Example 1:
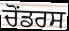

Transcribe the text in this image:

ਚੋਂਡਰਸ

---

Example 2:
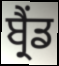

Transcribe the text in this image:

ਬ੍ਰੈਂਡ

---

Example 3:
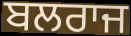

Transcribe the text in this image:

ਬਲਰਾਜ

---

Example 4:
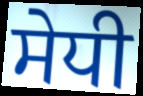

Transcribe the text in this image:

ਸੇਧੀ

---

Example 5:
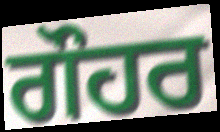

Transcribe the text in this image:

ਗੌਹਰ